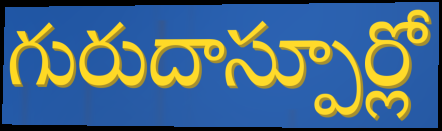
గురుదాస్పూర్లో